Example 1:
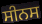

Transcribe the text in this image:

ਸੀਨਸ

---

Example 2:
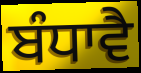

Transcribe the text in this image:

ਬੰਧਾਵੈ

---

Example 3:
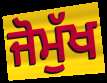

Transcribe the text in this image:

ਜੋਮੁੱਖ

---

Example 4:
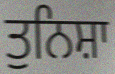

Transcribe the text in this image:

ਤੁਨਿਸ਼ਾ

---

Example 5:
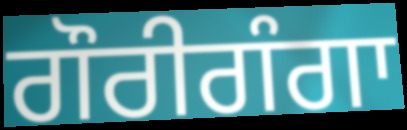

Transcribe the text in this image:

ਗੌਰੀਗੰਗਾ